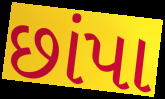
છાંપા